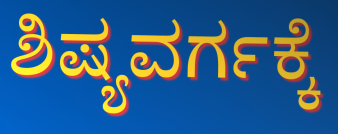
ಶಿಷ್ಯವರ್ಗಕ್ಕೆ